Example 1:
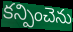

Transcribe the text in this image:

కన్పించెను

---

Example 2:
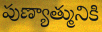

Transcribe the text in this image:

పుణ్యాత్మునికి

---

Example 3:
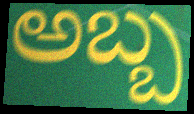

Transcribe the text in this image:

అబ్బ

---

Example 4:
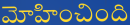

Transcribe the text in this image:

మోహించింది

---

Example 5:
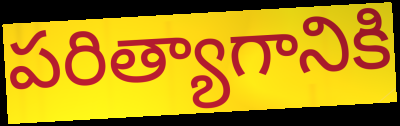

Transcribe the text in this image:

పరిత్యాగానికి